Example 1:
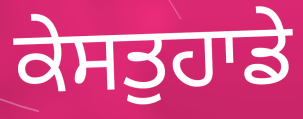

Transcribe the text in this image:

ਕੇਸਤੁਹਾਡੇ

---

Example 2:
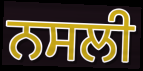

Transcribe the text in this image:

ਨਸਲੀ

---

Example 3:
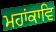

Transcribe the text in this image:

ਮਹਾਂਕਾਵਿ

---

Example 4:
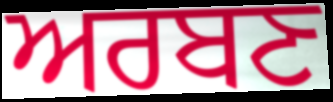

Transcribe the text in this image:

ਅਰਬਣ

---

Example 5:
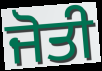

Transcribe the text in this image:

ਜੋਤੀ